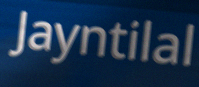
Jayntilal